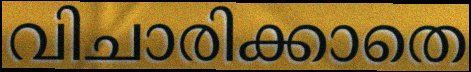
വിചാരിക്കാതെ